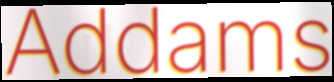
Addams